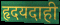
हृदयदाही